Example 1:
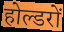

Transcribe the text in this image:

होल्डरों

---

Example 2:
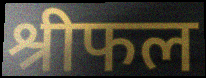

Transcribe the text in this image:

श्रीफल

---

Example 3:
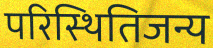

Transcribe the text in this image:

परिस्थितिजन्य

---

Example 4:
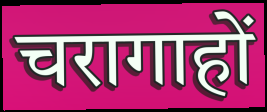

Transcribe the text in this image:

चरागाहों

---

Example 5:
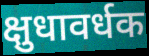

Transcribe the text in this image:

क्षुधावर्धक